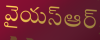
వైయస్ఆర్